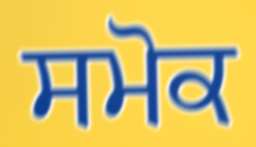
ਸਮੋਕ